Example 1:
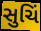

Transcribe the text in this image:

સુચિં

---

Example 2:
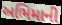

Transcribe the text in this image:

અભિમાની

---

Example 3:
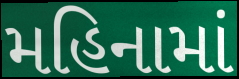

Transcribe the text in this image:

મહિનામાં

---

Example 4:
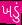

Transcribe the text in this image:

ખડું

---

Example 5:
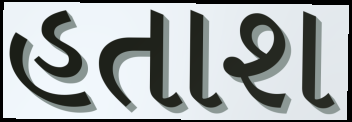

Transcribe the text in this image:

હતાશ